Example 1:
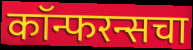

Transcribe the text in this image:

कॉन्फरन्सचा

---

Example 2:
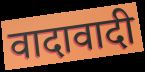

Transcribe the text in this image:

वादावादी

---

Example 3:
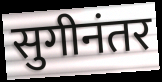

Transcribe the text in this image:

सुगीनंतर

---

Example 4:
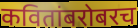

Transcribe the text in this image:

कवितांबरोबरच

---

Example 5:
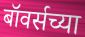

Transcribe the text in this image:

बॉवर्सच्या